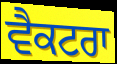
ਵੈਕਟਰਾ